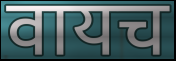
वायच